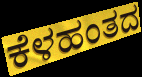
ಕೆಳಹಂತದ